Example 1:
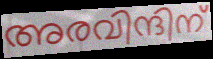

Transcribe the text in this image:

അരവിന്ദിന്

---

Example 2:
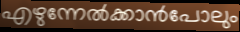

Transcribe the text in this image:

എഴുന്നേൽക്കാൻപോലും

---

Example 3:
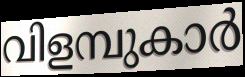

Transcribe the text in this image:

വിളമ്പുകാർ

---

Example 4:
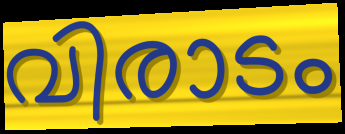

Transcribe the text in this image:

വിരാടം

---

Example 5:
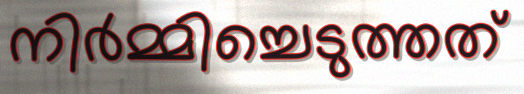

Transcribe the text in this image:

നിർമ്മിച്ചെടുത്തത്